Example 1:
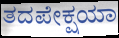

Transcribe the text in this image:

ತದಪೇಕ್ಷಯಾ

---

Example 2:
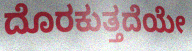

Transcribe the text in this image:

ದೊರಕುತ್ತದೆಯೇ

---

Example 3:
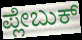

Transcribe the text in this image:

ಪ್ಲೇಬುಕ್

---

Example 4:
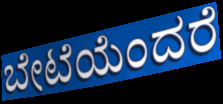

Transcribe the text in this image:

ಬೇಟೆಯೆಂದರೆ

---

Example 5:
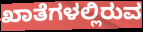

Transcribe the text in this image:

ಖಾತೆಗಳಲ್ಲಿರುವ